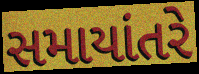
સમાયાંતરે